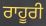
ਰਾਹੂਰੀ